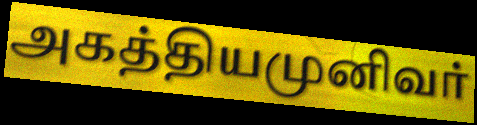
அகத்தியமுனிவர்